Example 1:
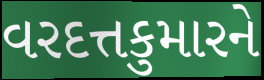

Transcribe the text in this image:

વરદત્તકુમારને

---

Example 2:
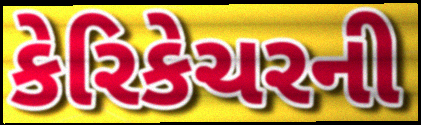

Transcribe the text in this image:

કેરિકેચરની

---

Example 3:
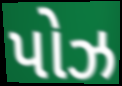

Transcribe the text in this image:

પોઝ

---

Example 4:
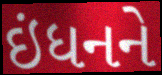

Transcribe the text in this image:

ઇંધનને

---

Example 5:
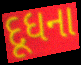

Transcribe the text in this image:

દૂધના